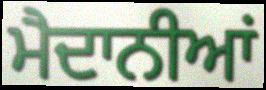
ਮੈਦਾਨੀਆਂ